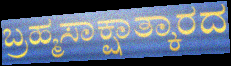
ಬ್ರಹ್ಮಸಾಕ್ಷಾತ್ಕಾರದ